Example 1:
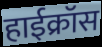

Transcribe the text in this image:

हाईक्रॉस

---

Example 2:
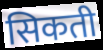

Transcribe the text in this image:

सिकती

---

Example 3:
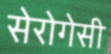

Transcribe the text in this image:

सेरोगेसी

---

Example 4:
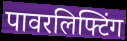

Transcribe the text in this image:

पावरलिफ्टिंग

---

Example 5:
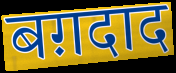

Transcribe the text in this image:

बग़दाद